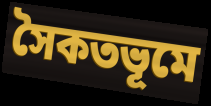
সৈকতভূমে